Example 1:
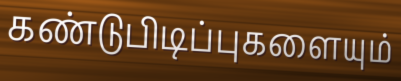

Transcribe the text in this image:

கண்டுபிடிப்புகளையும்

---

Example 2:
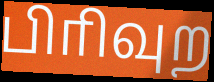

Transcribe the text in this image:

பிரிவுற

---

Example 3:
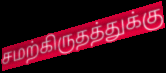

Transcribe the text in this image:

சமற்கிருதத்துக்கு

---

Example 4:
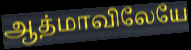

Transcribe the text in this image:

ஆத்மாவிலேயே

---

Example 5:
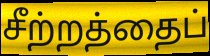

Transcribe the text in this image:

சீற்றத்தைப்